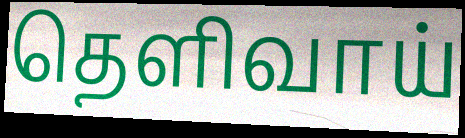
தெளிவாய்